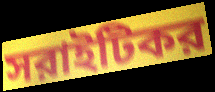
সরাইটিকর